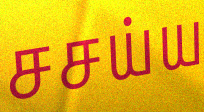
சசய்ய